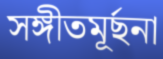
সঙ্গীতমূর্ছনা